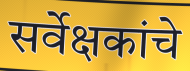
सर्वेक्षकांचे